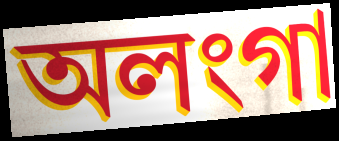
অলংগা